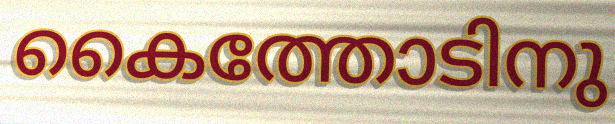
കൈത്തോടിനു